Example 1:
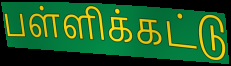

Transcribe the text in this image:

பள்ளிக்கட்டு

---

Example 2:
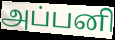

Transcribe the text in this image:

அப்பனி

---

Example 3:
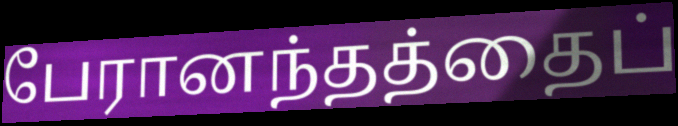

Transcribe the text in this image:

பேரானந்தத்தைப்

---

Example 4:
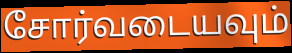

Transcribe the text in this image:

சோர்வடையவும்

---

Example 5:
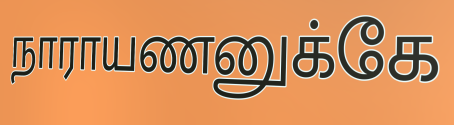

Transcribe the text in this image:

நாராயணனுக்கே